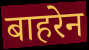
बाहरेन